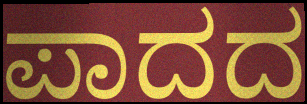
ಪಾದದ